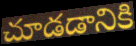
చూడడానికి